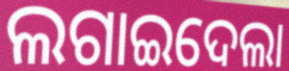
ଲଗାଇଦେଲା